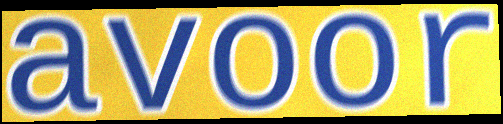
avoor